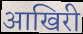
आखिरी